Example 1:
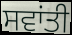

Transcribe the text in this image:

ਸਵਾਂਤੀ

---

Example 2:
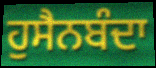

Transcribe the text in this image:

ਹੁਸੈਨਬੰਦਾ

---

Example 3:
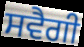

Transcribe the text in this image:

ਸਵੈਗੀ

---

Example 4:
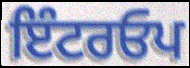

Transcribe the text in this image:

ਇੰਟਰਓਪ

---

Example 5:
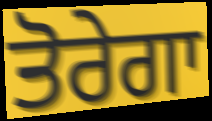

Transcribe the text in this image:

ਤੋਰੇਗਾ